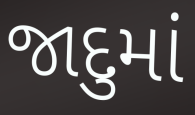
જાદુમાં